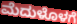
ಮೆದುಳೊಳಗೆ